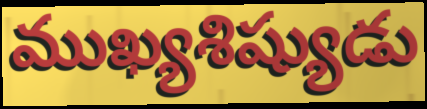
ముఖ్యశిష్యుడు